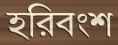
হরিবংশ